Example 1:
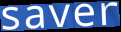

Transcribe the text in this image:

saver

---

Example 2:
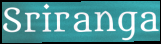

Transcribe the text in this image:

Sriranga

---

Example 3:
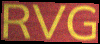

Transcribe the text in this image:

RVG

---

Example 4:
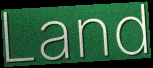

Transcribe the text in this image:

Land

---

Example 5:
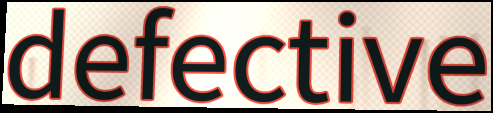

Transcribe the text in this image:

defective